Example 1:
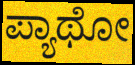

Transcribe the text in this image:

ಪ್ಯಾಥೋ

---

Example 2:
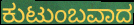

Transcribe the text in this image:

ಕುಟುಂಬವಾದ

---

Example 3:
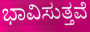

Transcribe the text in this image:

ಭಾವಿಸುತ್ತವೆ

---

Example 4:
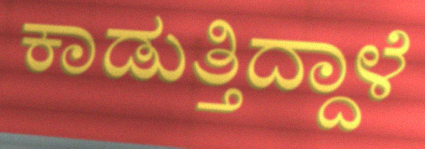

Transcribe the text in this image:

ಕಾಡುತ್ತಿದ್ದಾಳೆ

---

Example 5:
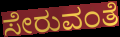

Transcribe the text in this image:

ಸೇರುವಂತೆ